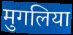
मुगलिया